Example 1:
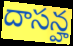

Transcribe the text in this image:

దాసన్హ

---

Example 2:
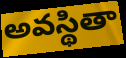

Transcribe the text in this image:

అవస్థితా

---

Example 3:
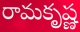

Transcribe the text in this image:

రామకృష్ణ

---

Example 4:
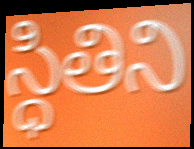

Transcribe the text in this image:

స్ధితిని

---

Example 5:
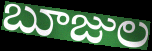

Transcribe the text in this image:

బూజుల